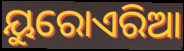
ୟୁରୋଏରିଆ